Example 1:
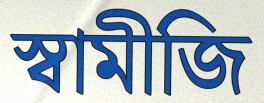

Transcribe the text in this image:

স্বামীজি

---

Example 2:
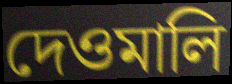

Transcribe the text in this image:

দেওমালি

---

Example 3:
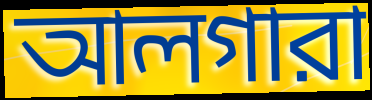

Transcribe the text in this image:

আলগারা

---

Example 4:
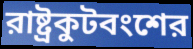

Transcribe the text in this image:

রাষ্ট্রকুটবংশের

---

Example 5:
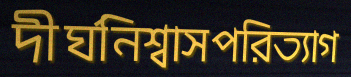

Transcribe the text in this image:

দীর্ঘনিশ্বাসপরিত্যাগ